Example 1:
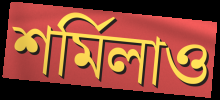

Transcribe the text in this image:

শর্মিলাও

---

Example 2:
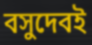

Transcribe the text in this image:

বসুদেবই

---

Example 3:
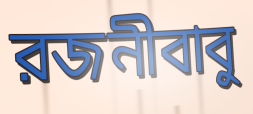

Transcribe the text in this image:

রজনীবাবু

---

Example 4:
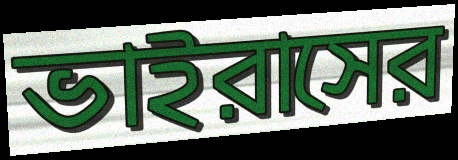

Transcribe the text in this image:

ভাইরাসের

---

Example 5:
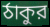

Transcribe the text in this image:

ঠাকুর